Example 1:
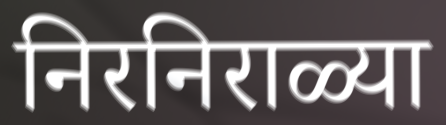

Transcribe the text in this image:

निरनिराळ्या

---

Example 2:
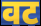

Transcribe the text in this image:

वट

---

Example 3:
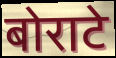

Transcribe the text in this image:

बोराटे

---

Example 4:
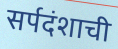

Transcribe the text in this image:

सर्पदंशाची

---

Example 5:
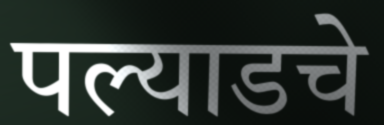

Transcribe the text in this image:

पल्याडचे